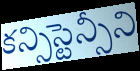
కన్సిస్టెన్సీని